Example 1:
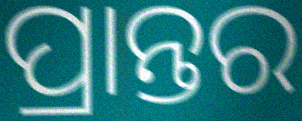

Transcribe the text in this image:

ପ୍ରାନ୍ତର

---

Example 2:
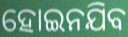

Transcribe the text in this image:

ହୋଇନଯିବ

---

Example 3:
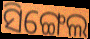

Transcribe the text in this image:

ସିଙ୍ଗେଲ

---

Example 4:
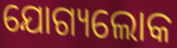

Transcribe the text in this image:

ଯୋଗ୍ୟଲୋକ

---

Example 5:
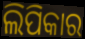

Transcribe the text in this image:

ଲିପିକାର